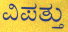
ವಿಪತ್ತು